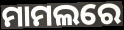
ମାମଲରେ